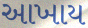
આખાય